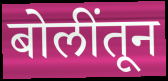
बोलींतून